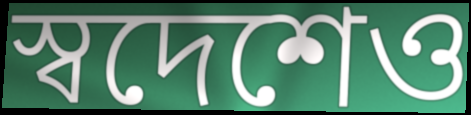
স্বদেশেও